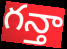
గన్తా